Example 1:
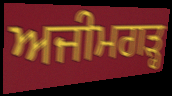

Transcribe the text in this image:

ਅਜੀਮਗੜ੍ਹ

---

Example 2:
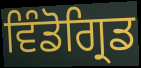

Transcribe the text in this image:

ਵਿੰਡੋਗ੍ਰਿਡ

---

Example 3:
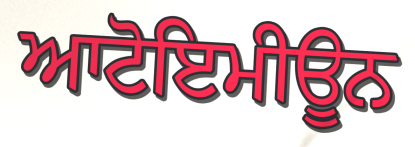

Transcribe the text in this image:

ਆਟੋਇਮੀਊਨ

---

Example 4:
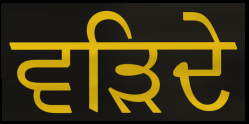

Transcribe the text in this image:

ਵੜਿਦੇ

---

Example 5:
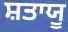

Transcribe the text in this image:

ਸ਼ਤਾਯੂ